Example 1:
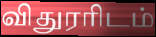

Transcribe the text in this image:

விதுரரிடம்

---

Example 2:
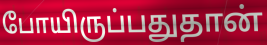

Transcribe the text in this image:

போயிருப்பதுதான்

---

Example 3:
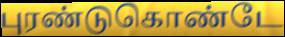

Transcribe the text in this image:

புரண்டுகொண்டே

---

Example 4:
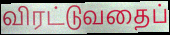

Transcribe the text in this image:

விரட்டுவதைப்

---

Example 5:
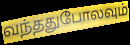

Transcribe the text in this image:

வந்ததுபோலவும்